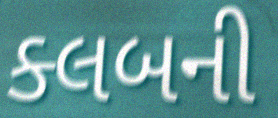
ક્લબની